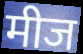
मीज